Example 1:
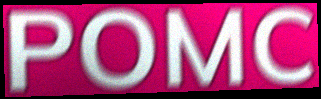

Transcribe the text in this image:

POMC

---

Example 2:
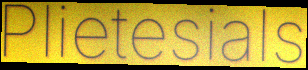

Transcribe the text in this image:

Plietesials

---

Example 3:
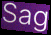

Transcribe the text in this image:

Sag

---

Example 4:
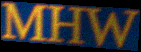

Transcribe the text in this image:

MHW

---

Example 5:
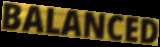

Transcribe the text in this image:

BALANCED